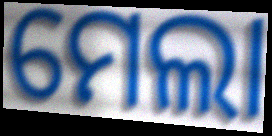
ମେଲା